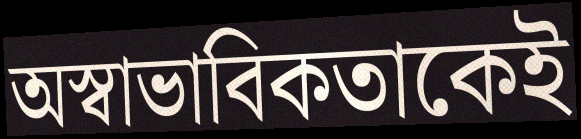
অস্বাভাবিকতাকেই